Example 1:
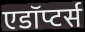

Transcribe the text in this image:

एडॉप्टर्स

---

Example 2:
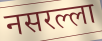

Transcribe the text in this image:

नसरल्ला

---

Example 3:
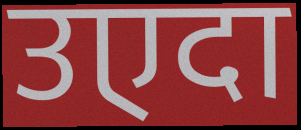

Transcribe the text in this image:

उएदा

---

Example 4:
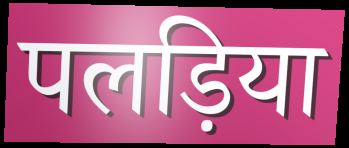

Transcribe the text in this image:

पलड़िया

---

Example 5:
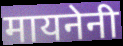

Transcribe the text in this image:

मायनेनी